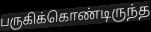
பருகிக்கொண்டிருந்த